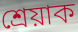
শ্ৰেয়াক